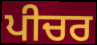
ਪੀਚਰ